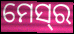
ମେସ୍‌ର